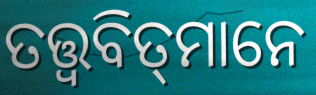
ତତ୍ତ୍ୱବିତ୍‌ମାନେ